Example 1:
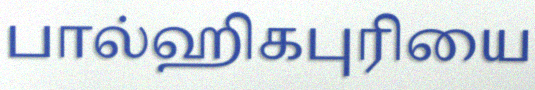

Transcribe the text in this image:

பால்ஹிகபுரியை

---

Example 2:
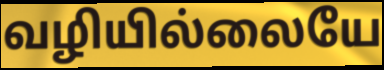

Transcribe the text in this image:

வழியில்லையே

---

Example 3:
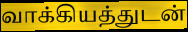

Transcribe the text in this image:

வாக்கியத்துடன்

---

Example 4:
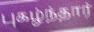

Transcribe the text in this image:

புகழ்ந்தார்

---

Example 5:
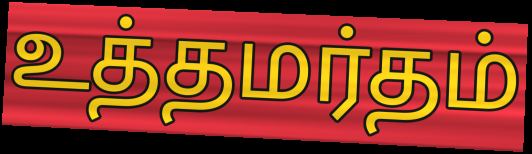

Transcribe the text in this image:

உத்தமர்தம்